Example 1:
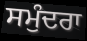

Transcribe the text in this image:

ਸਮੁੰਦਰਾ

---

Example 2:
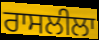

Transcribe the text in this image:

ਰਾਸਲੀਲਾ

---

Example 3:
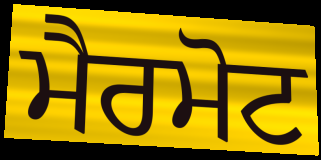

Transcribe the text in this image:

ਮੈਰਮੋਟ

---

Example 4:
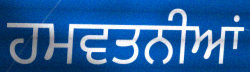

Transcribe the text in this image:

ਹਮਵਤਨੀਆਂ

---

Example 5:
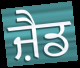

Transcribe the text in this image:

ਜ਼ੈਡ